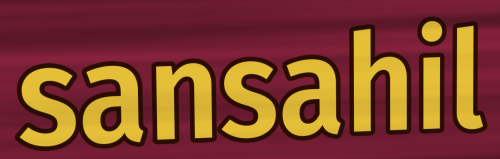
sansahil